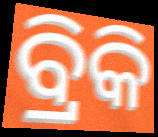
ବ୍ରିକି